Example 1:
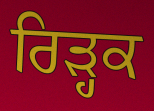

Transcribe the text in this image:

ਰਿੜ੍ਹਕ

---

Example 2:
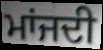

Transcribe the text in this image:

ਮਾਂਜਦੀ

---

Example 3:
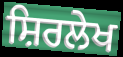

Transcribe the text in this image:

ਸ਼ਿਰਲੇਖ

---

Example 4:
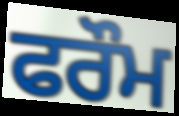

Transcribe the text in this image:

ਫਰੌਮ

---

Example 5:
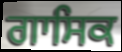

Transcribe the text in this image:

ਗਾਸਿਕ